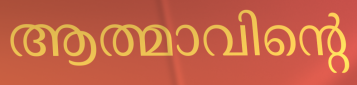
ആത്മാവിന്റെ